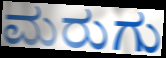
ಮರುಗು